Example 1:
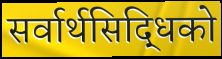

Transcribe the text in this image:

सर्वार्थसिद्धिको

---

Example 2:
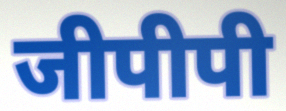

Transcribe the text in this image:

जीपीपी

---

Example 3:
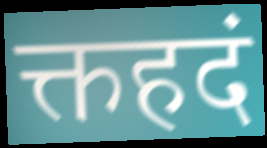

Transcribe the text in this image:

क्तहदं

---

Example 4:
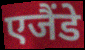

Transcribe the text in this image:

एजैंडे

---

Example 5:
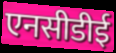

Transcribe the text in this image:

एनसीडीई